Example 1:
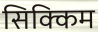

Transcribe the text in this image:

सिक्किम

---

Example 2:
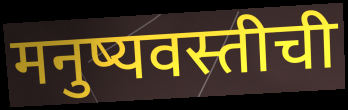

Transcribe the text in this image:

मनुष्यवस्तीची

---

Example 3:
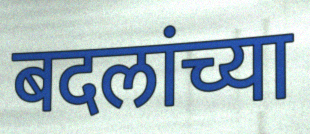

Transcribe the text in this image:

बदलांच्या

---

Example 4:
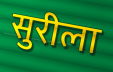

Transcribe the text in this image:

सुरीला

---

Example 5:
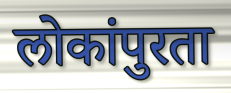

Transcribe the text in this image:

लोकांपुरता